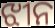
ଝୀନ